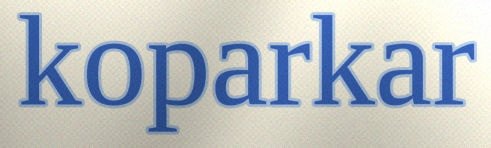
koparkar